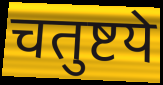
चतुष्टये